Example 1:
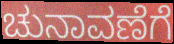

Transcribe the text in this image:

ಚುನಾವಣೆಗೆ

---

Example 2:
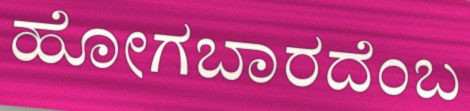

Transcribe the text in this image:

ಹೋಗಬಾರದೆಂಬ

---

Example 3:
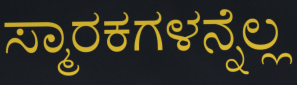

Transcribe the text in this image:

ಸ್ಮಾರಕಗಳನ್ನೆಲ್ಲ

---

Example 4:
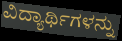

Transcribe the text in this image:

ವಿದ್ಯಾರ್ಥಿಗಳನ್ನು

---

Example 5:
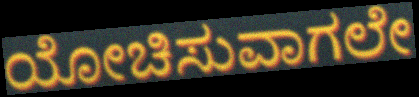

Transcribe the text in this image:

ಯೋಚಿಸುವಾಗಲೇ